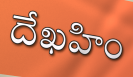
దేఖహిం